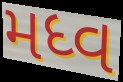
મધ્વ